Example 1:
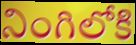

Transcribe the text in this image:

నింగిలోకి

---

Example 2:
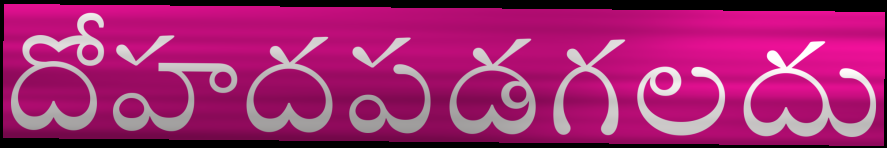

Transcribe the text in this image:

దోహదపడగలదు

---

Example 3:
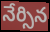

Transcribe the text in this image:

నేర్సిన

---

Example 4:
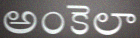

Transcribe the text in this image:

అంకెలా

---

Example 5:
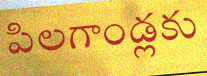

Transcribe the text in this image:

పిలగాండ్లకు